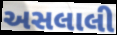
અસલાલી